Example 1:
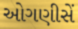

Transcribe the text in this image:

ઓગણીસેં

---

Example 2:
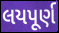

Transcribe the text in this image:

લયપૂર્ણ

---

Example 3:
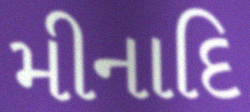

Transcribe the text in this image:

મીનાદિ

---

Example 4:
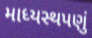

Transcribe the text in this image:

માધ્યસ્થપણું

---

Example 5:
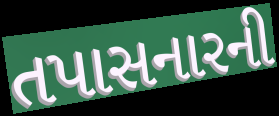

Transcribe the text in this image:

તપાસનારની